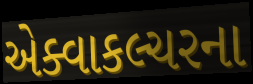
એક્વાકલ્ચરના